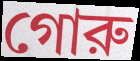
গোরু